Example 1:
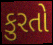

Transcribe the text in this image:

કુરતો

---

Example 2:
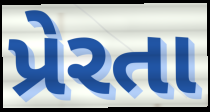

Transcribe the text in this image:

પ્રેરતા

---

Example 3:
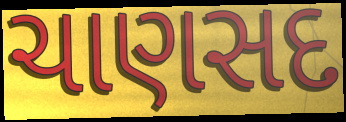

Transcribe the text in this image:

ચાણસદ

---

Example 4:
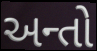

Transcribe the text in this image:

અન્તો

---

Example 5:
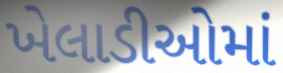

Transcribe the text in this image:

ખેલાડીઓમાં